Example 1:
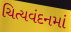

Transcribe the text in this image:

ચિત્યવંદનમાં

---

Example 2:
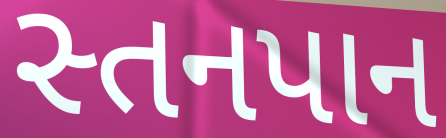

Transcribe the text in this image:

સ્તનપાન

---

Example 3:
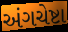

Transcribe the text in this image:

અંગચેષ્ટા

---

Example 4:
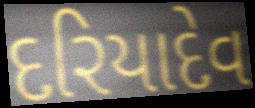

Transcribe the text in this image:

દરિયાદેવ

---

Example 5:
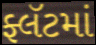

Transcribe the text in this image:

ફ્લૅટમાં